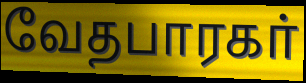
வேதபாரகர்